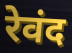
रेवंद